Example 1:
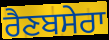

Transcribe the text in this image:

ਰੈਣਬਸੇਰਾ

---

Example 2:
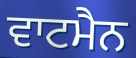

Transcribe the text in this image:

ਵਾਟਮੈਨ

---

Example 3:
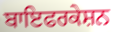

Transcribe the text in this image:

ਬਾਇਫਰਕੇਸ਼ਨ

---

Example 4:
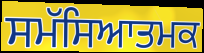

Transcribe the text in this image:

ਸਮੱਸਿਆਤਮਕ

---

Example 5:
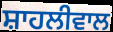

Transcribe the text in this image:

ਸ਼ਾਹਲੀਵਾਲ